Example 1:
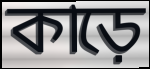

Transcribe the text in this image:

কাড়ে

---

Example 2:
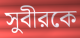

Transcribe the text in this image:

সুবীরকে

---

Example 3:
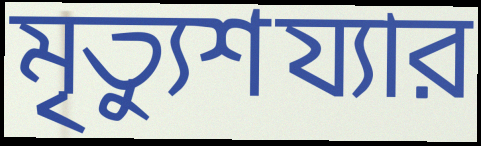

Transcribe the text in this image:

মৃত্যুশয্যার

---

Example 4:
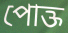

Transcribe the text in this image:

পোক্ত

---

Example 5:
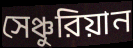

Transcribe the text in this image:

সেঞ্চুরিয়ান